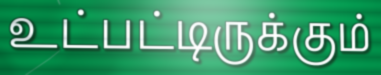
உட்பட்டிருக்கும்